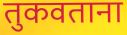
तुकवताना